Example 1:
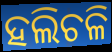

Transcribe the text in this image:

ହଲିଚଳି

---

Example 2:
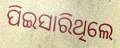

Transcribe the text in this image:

ପିଇସାରିଥିଲେ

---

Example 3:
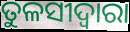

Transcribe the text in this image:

ତୁଳସୀଦ୍ବାରା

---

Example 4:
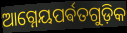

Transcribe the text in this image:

ଆଗ୍ନେୟପର୍ଵତଗୁଡ଼ିକ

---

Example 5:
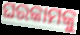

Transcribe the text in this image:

ଘରକାମକୁ